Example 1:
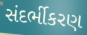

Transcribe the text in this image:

સંદર્ભીકરણ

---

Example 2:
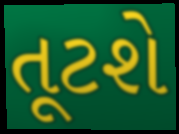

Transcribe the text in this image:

તૂટશે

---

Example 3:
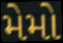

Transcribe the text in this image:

મેમો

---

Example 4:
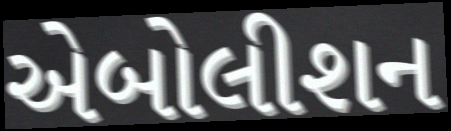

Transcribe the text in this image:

એબોલીશન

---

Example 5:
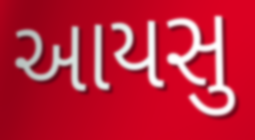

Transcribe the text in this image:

આયસુ